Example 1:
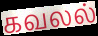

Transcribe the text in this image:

கவலல்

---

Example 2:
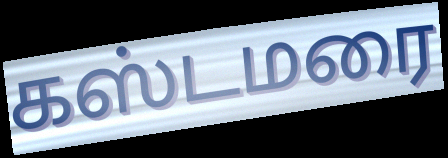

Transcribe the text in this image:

கஸ்டமரை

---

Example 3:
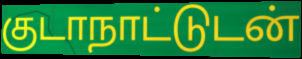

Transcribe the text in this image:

குடாநாட்டுடன்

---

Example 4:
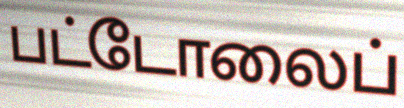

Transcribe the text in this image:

பட்டோலைப்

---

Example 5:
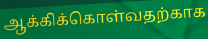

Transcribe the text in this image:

ஆக்கிக்கொள்வதற்காக